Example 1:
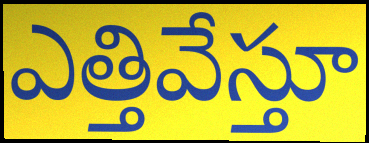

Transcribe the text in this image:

ఎత్తివేస్తూ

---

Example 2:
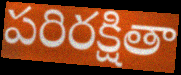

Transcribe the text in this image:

పరిరక్షితా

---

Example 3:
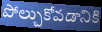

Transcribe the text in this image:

పోల్చుకోవడానికి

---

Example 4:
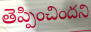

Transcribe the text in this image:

తెప్పించిందని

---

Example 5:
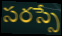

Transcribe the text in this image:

సరస్సే